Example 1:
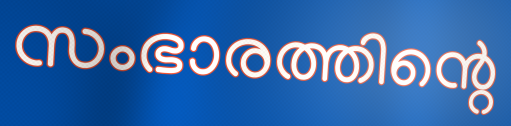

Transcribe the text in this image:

സംഭാരത്തിന്റെ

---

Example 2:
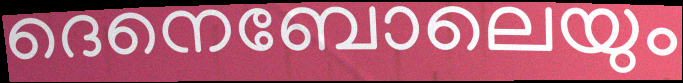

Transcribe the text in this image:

ദെനെബോലെയും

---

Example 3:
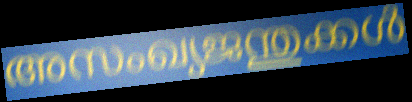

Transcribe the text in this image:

അസംഖ്യജന്തുക്കൾ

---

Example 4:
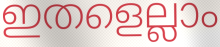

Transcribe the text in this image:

ഇതളെല്ലാം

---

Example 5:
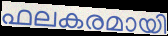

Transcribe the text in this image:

ഫലകരമായി